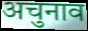
अचुनाव